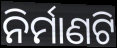
ନିର୍ମାଣଟି